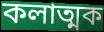
কলাত্মক